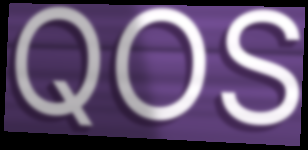
QOS